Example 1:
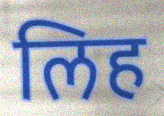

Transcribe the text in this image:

लिह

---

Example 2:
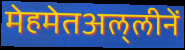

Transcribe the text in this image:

मेहमेतअल्लीनें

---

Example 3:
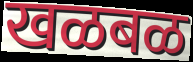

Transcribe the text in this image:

खळबळ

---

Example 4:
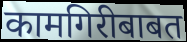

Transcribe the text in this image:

कामगिरीबाबत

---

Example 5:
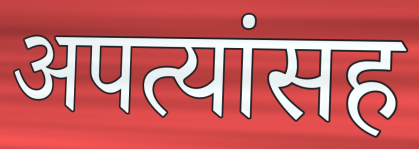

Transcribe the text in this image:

अपत्यांसह